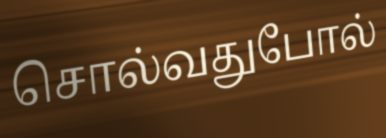
சொல்வதுபோல்